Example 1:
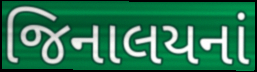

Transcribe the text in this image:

જિનાલયનાં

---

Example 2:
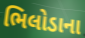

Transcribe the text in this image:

ભિલોડાના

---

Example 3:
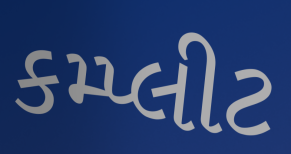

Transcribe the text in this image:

કમ્પ્લીટ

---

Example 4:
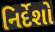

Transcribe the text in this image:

નિર્દેશો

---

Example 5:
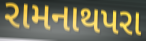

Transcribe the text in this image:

રામનાથપરા